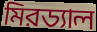
মিরড্যাল